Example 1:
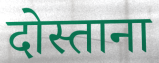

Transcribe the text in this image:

दोस्ताना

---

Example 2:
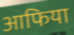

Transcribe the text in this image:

आफिया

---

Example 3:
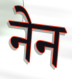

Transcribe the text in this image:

नेन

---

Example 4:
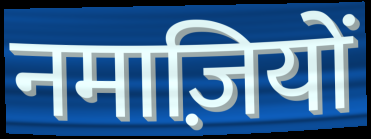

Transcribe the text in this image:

नमाज़ियों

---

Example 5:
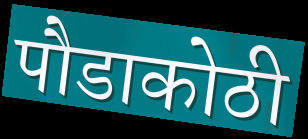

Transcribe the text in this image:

पौडाकोठी